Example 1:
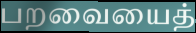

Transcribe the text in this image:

பறவையைத்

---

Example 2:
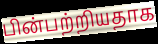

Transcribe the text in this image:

பின்பற்றியதாக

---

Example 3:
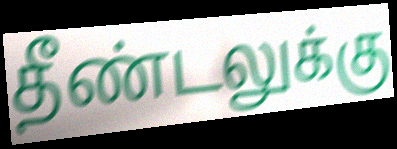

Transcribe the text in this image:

தீண்டலுக்கு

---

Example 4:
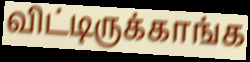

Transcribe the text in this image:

விட்டிருக்காங்க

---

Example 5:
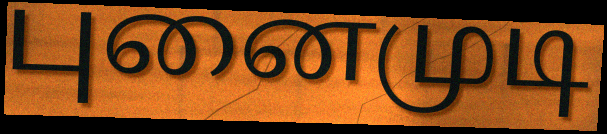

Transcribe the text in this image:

புனைமுடி